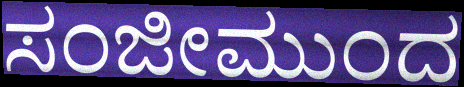
ಸಂಜೀಮುಂದ